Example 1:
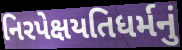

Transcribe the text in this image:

નિરપેક્ષયતિધર્મનું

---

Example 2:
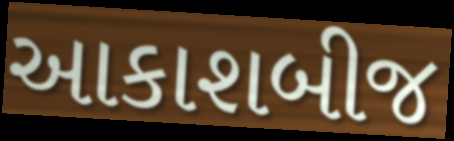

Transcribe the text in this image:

આકાશબીજ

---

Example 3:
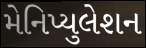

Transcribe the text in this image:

મેનિપ્યુલેશન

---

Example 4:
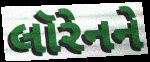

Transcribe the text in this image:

લૉરેનને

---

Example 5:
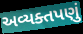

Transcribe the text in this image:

અવ્યક્તપણું